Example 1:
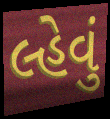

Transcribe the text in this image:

લ્હેવું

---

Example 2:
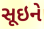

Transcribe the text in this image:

સૂઇને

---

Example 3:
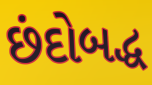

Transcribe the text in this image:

છંદોબદ્ધ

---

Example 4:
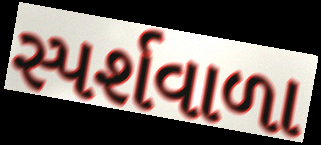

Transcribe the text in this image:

સ્પર્શવાળા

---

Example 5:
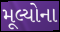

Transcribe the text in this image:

મૂલ્યોના